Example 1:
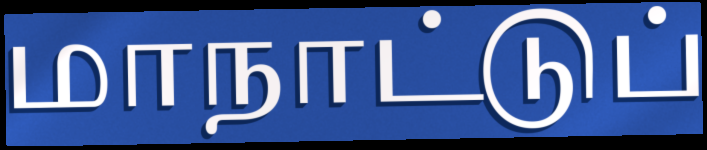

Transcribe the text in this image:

மாநாட்டுப்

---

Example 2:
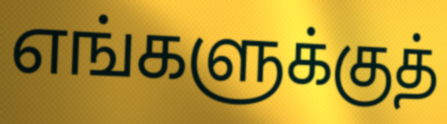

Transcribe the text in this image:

எங்களுக்குத்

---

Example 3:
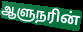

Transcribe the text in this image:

ஆளுநரின்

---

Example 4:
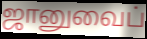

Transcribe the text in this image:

ஜானுவைப்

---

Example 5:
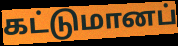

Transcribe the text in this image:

கட்டுமானப்